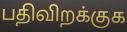
பதிவிறக்குக